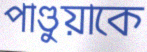
পাণ্ডুয়াকে